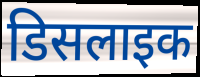
डिसलाइक